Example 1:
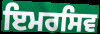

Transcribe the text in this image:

ਇਮਰਸਿਵ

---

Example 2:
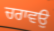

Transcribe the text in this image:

ਚਰਾਵਉ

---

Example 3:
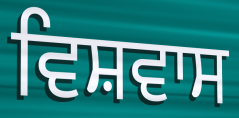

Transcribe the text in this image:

ਵਿਸ਼ਵਾਸ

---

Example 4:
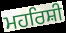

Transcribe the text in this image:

ਮਹਰਿਸ਼ੀ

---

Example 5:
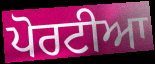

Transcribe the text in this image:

ਪੋਰਟੀਆ